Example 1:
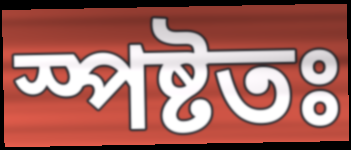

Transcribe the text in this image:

স্পষ্টতঃ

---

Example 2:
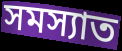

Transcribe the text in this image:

সমস্যাত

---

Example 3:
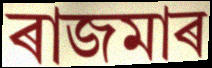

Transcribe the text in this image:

ৰাজমাৰ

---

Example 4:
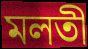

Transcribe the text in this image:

মলতী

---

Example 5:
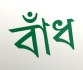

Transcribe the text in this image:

বাঁধ